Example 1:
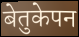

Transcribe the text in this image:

बेतुकेपन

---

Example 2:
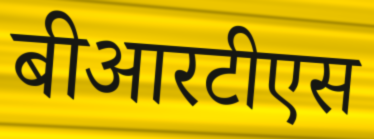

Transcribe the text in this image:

बीआरटीएस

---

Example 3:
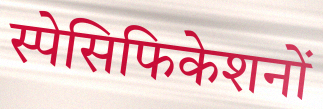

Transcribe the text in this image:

स्पेसिफिकेशनों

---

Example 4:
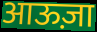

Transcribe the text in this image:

आऊज़ा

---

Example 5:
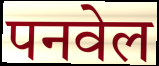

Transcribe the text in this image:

पनवेल